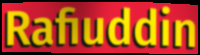
Rafiuddin